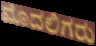
ಮೊದಲಿಗರು